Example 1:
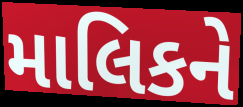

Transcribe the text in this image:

માલિકને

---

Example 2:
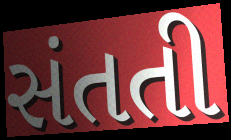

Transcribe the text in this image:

સંતતી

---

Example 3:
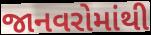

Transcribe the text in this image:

જાનવરોમાંથી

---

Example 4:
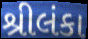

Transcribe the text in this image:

શ્રીલંકા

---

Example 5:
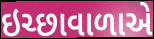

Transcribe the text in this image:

ઇચ્છાવાળાએ